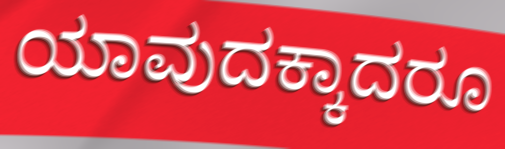
ಯಾವುದಕ್ಕಾದರೂ